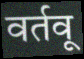
वर्तवू